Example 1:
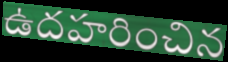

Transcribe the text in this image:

ఉదహరించిన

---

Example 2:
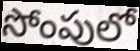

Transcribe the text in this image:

సోంపులో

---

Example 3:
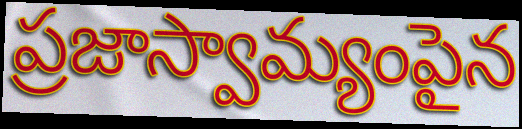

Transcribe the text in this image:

ప్రజాస్వామ్యంపైన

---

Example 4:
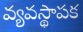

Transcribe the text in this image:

వ్యవస్థాపక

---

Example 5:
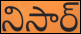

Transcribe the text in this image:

నిసార్